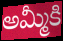
అమ్మీకి